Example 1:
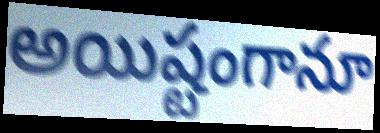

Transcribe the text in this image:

అయిష్టంగానూ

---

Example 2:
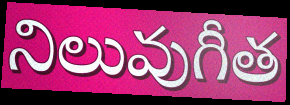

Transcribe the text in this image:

నిలువుగీత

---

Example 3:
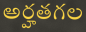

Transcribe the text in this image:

అర్హతగల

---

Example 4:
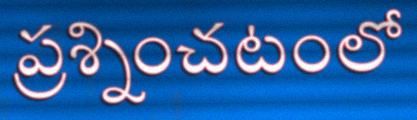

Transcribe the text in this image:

ప్రశ్నించటంలో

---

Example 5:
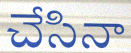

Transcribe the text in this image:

చేసినా